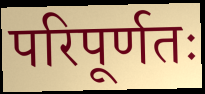
परिपूर्णतः